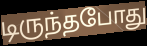
டிருந்தபோது